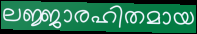
ലജ്ജാരഹിതമായ